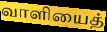
வாளியைத்